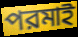
পরমাই